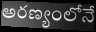
అరణ్యంలోనే